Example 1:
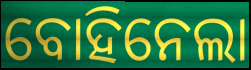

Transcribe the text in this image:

ବୋହିନେଲା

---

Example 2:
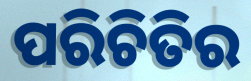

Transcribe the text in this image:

ପରିଚିତିର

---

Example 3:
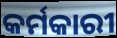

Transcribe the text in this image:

କର୍ମକାରୀ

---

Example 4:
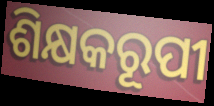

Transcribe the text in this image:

ଶିକ୍ଷକରୂପୀ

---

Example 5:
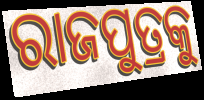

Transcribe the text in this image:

ରାଜପୁତ୍ରକୁ